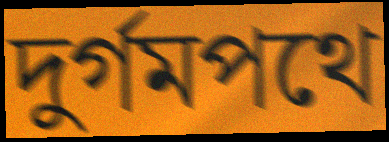
দুর্গমপথে